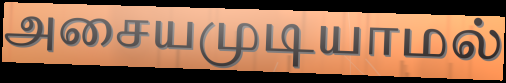
அசையமுடியாமல்